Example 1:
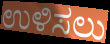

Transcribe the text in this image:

ಉಳಿಸಲು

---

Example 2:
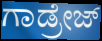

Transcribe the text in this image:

ಗಾಡ್ರೇಜ್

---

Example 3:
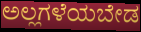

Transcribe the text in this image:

ಅಲ್ಲಗಳೆಯಬೇಡ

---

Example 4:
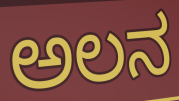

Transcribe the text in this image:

ಅಲನ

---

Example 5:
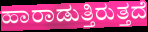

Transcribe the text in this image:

ಹಾರಾಡುತ್ತಿರುತ್ತದೆ